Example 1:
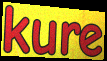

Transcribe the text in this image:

kure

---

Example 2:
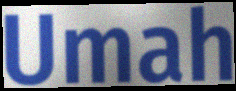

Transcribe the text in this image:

Umah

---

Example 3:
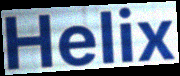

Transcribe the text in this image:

Helix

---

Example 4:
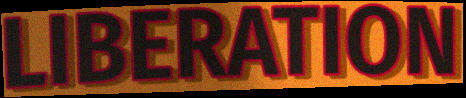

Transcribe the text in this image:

LIBERATION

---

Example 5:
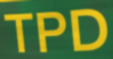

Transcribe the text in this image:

TPD